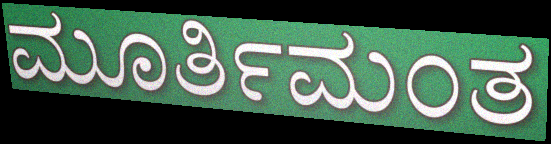
ಮೂರ್ತಿಮಂತ